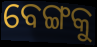
ବେଙ୍ଗକୁ